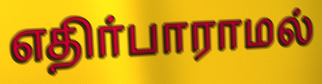
எதிர்பாராமல்